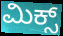
ಮಿಕ್ಸ್